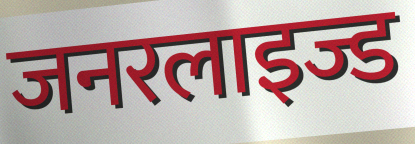
जनरलाइज्ड